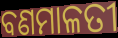
ବଣମାଳତୀ